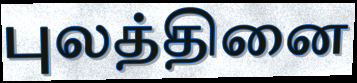
புலத்தினை